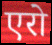
एरो